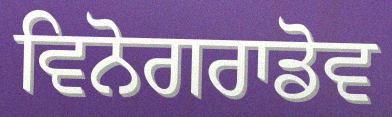
ਵਿਨੋਗਰਾਡੋਵ